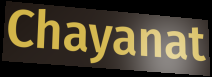
Chayanat